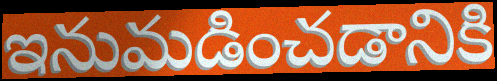
ఇనుమడించడానికి